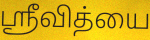
ஸ்ரீவித்யை